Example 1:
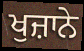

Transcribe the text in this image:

ਖੁਜ਼ਾਨੇ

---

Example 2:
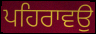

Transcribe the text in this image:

ਪਹਿਰਾਵਉ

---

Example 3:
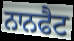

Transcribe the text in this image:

ਨਾਨਫੈਟ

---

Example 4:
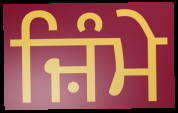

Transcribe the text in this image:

ਜ਼ਿੰਮੇ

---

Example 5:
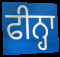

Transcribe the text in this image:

ਫੀਨ੍ਹਾ